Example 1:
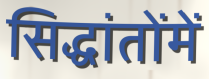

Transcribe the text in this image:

सिद्धांतोंमें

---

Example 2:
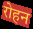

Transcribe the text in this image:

रोहन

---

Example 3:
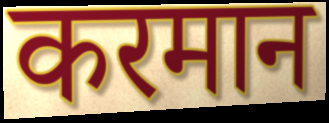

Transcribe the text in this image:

करमान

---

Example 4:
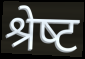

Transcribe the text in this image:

श्रेष्‍ट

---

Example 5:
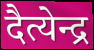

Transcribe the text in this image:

दैत्येन्द्र